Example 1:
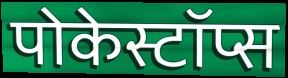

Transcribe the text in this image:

पोकेस्टॉप्स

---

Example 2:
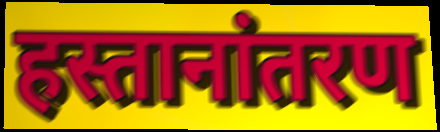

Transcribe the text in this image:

हस्तानांतरण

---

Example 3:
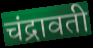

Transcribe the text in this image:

चंद्रावती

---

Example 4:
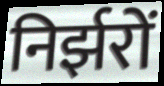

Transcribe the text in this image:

निर्झरों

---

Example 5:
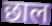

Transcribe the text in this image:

छाल